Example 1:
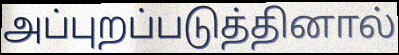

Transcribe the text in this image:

அப்புறப்படுத்தினால்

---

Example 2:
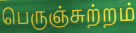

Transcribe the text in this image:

பெருஞ்சுற்றம்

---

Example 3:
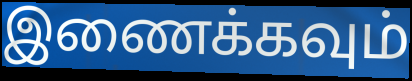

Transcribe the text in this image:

இணைக்கவும்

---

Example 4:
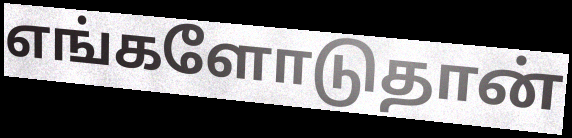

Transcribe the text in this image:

எங்களோடுதான்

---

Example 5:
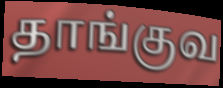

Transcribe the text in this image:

தாங்குவ